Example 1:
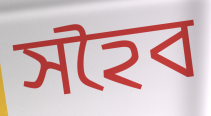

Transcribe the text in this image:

সহৈব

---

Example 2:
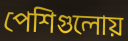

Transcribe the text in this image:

পেশিগুলোয়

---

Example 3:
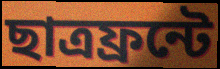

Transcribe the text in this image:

ছাত্রফ্রন্টে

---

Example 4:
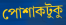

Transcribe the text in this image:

পোশাকটুকু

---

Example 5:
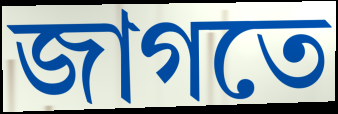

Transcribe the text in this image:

জাগতে